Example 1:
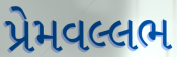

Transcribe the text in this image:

પ્રેમવલ્લભ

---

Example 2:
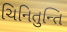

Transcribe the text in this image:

ચિનિતુન્તિ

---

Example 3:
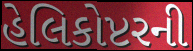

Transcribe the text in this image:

હેલિકોપ્ટરની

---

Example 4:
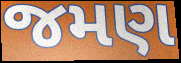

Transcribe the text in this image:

જમણ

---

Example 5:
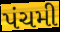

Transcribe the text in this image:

પંચમી